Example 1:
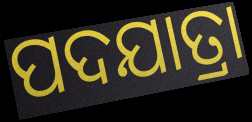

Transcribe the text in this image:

ପଦଯାତ୍ରା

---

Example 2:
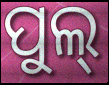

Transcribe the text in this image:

ପୁଲ୍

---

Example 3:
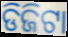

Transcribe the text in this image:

ଡିଜିଟା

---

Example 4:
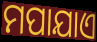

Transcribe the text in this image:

ମପାଯାଏ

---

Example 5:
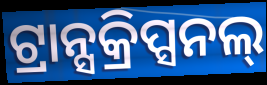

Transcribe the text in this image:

ଟ୍ରାନ୍ସକ୍ରିପ୍ସନଲ୍